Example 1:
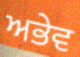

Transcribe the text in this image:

ਅਭੇਵ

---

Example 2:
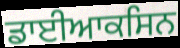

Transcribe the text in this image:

ਡਾਈਆਕਸਿਨ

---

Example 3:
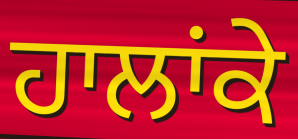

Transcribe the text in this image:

ਹਾਲਾਂਕੇ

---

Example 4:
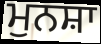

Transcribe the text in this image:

ਮੁਨਸ਼ਾ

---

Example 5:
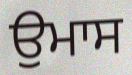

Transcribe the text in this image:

ਉਮਾਸ